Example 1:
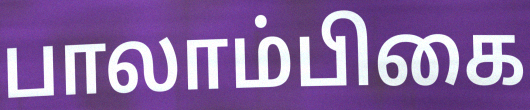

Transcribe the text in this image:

பாலாம்பிகை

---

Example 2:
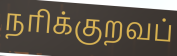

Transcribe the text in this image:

நரிக்குறவப்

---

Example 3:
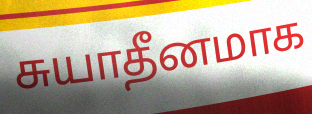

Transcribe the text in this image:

சுயாதீனமாக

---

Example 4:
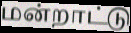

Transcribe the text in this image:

மன்றாட்டு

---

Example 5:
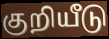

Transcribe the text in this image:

குறியீடு